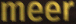
meer